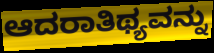
ಆದರಾತಿಥ್ಯವನ್ನು